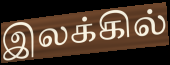
இலக்கில்